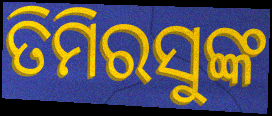
ତିମିରସୁଙ୍କ